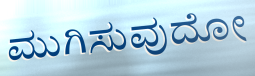
ಮುಗಿಸುವುದೋ